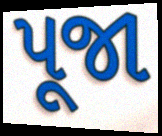
પૂજા